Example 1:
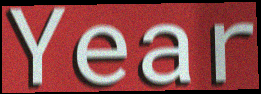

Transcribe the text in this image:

Year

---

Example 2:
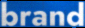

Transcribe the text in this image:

brand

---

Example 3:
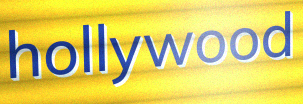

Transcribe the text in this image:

hollywood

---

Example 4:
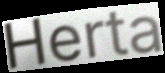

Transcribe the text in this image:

Herta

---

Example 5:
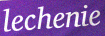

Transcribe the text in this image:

lechenie